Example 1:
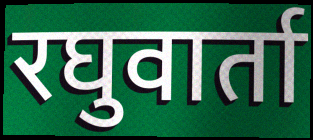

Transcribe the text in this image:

रघुवार्ता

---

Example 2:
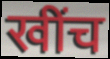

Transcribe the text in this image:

खींच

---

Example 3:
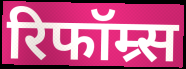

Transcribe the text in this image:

रिफॉम्र्स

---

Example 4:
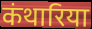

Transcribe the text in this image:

कंथारिया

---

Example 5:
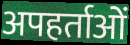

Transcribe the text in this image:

अपहर्ताओं